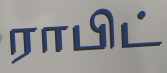
ராபிட்